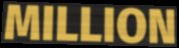
MILLION